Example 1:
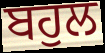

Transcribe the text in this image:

ਬਹੁਲ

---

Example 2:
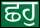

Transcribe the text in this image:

ਛਹੁ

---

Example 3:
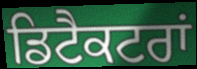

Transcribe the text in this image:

ਡਿਟੈਕਟਰਾਂ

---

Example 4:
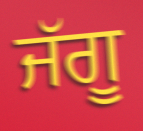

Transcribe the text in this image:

ਜੱਗੂ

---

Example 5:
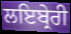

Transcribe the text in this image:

ਲਇਬ੍ਰੇਰੀ